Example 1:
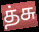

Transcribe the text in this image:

த்சு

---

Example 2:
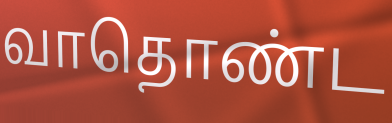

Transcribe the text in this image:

வாதொண்ட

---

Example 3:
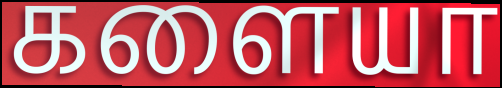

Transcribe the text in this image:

களையா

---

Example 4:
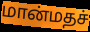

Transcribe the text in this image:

மான்மதச்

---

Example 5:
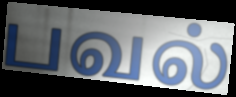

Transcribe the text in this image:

பவல்